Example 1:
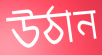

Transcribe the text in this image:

উঠান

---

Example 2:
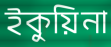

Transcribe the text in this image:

ইকুয়িনা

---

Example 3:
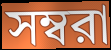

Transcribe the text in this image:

সম্বরা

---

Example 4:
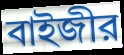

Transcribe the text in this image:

বাইজীর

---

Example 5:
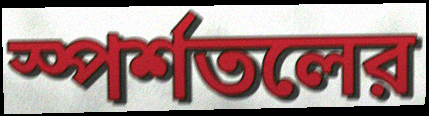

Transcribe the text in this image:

স্পর্শতলের